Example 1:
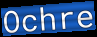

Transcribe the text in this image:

Ochre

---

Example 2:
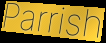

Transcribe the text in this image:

Parrish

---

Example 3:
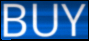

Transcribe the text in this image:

BUY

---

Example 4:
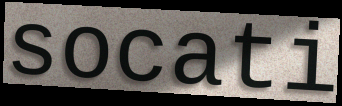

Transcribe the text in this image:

socati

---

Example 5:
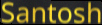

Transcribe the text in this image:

Santosh